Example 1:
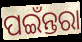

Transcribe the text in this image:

ପଇଁନ୍ତରା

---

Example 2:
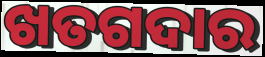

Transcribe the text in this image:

ଖତଗଦାର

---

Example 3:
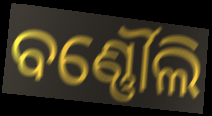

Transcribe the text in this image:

ବର୍ଣ୍ଣୌଲି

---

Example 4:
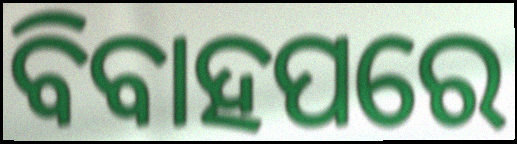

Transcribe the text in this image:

ବିବାହପରେ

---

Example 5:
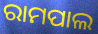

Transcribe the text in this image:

ରାମପାଲ